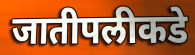
जातीपलीकडे